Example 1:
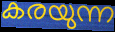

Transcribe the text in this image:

കരയുന്ന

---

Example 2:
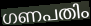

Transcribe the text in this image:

ഗണപതിം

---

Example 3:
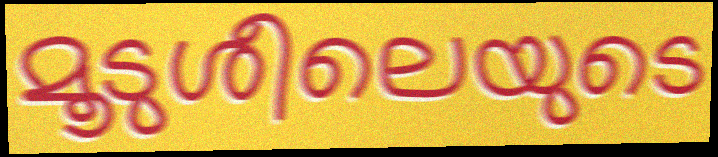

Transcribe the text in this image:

മൂടുശീലെയുടെ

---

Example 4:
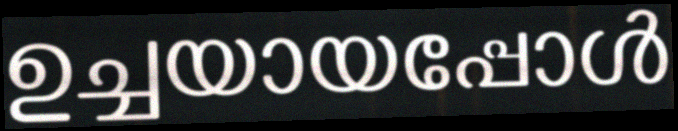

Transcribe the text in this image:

ഉച്ചയായപ്പോൾ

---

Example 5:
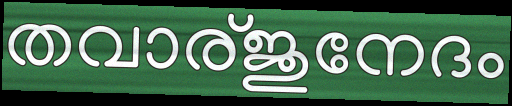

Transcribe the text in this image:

തവാര്ജുനേദം